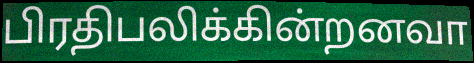
பிரதிபலிக்கின்றனவா